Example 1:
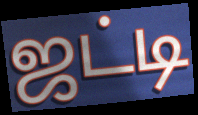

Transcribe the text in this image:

ஜட்டி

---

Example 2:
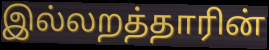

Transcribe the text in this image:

இல்லறத்தாரின்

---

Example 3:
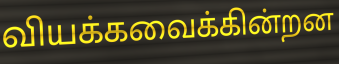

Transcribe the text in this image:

வியக்கவைக்கின்றன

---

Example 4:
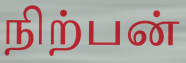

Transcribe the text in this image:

நிற்பன்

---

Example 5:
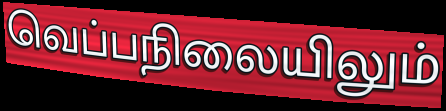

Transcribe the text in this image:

வெப்பநிலையிலும்